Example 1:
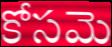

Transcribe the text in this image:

కోసమె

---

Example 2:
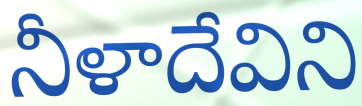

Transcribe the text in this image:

నీళాదేవిని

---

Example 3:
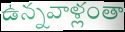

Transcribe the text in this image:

ఉన్నవాళ్లంతా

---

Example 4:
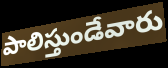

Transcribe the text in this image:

పాలిస్తుండేవారు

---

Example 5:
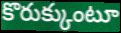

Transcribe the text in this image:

కొరుక్కుంటూ